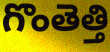
గొంతెత్తి